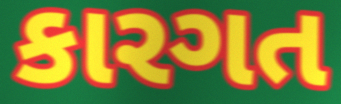
કારગત